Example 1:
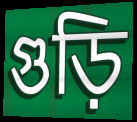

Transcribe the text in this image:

গুড়ি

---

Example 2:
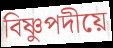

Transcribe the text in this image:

বিষ্ণুপদীয়ে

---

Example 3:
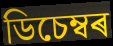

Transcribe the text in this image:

ডিচেম্বৰ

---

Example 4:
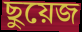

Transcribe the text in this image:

ছুয়েজ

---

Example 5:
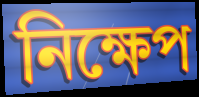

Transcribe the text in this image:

নিক্ষেপ